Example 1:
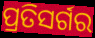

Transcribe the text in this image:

ପ୍ରତିସର୍ଗର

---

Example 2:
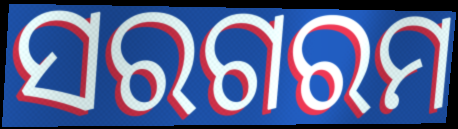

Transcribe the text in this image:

ସରଗରମ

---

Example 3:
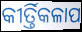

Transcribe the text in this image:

କୀର୍ତ୍ତିକଳାପ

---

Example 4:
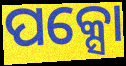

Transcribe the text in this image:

ପକ୍ସୋ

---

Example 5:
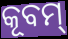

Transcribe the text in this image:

କୂବମ୍